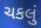
ચકલું